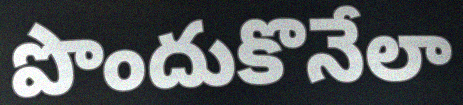
పొందుకొనేలా